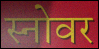
स्नोवर